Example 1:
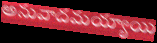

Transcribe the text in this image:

అనువాదమయ్యాయి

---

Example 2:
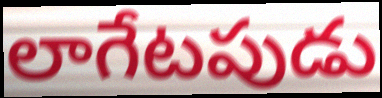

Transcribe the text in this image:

లాగేటపుడు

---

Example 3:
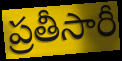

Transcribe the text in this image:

ప్రతీసారీ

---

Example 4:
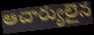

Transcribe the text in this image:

ఆచార్యులైన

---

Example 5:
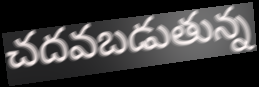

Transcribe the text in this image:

చదవబడుతున్న